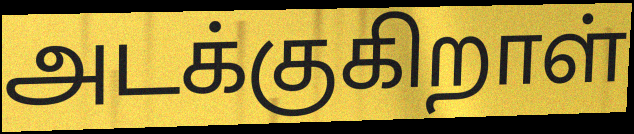
அடக்குகிறாள்